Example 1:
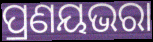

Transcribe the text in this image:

ପ୍ରଣୟଭରା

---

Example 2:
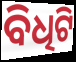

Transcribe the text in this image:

ବିଧିଟି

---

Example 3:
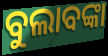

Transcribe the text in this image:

ବୁଲାବଙ୍କା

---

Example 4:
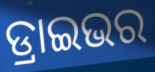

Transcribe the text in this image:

ଡ୍ରାଇଭର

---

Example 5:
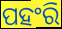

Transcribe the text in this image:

ପହଂରି